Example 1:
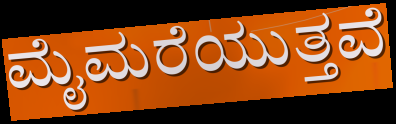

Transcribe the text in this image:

ಮೈಮರೆಯುತ್ತವೆ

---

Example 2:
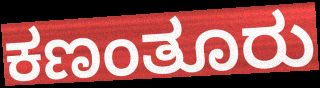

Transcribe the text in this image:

ಕಣಂತೂರು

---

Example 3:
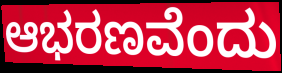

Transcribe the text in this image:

ಆಭರಣವೆಂದು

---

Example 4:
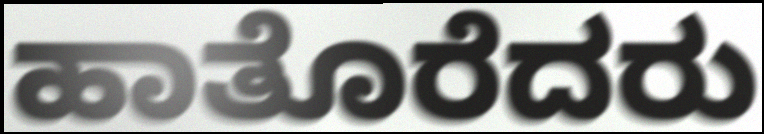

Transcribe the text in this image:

ಹಾತೊರೆದರು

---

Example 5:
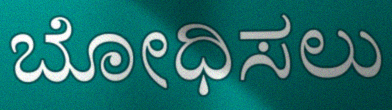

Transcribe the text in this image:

ಬೋಧಿಸಲು